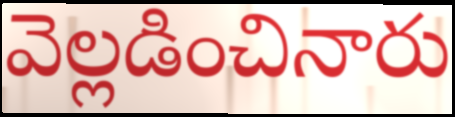
వెల్లడించినారు